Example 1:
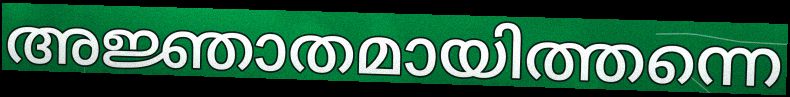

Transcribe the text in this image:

അജ്ഞാതമായിത്തന്നെ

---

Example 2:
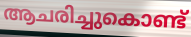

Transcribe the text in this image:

ആചരിച്ചുകൊണ്ട്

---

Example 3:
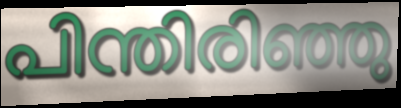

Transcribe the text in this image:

പിന്തിരിഞ്ഞു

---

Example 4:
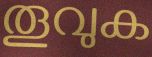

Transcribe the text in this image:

തൂവുക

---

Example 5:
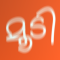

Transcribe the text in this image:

മൂടി